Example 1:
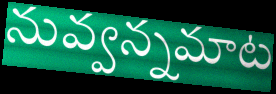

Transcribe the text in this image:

నువ్వన్నమాట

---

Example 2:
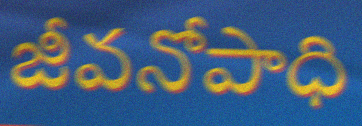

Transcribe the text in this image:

జీవనోపాధి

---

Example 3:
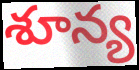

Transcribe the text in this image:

శూన్య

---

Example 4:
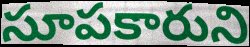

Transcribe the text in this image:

సూపకారుని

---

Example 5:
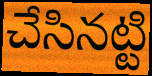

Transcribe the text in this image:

చేసినట్టి